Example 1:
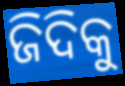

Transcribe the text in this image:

ଜିଦିକୁ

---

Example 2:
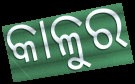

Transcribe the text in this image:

କାଳୁର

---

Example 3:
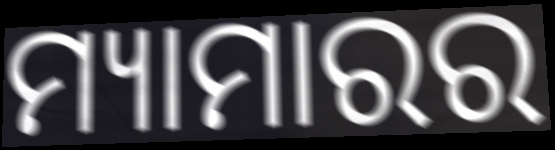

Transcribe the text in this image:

ମ୍ୟାମାରର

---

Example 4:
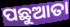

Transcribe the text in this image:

ପଛୁଆତା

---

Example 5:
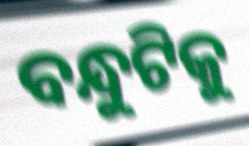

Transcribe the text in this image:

ବନ୍ଧୁଟିକୁ